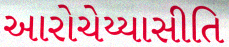
આરોચેય્યાસીતિ